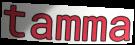
tamma